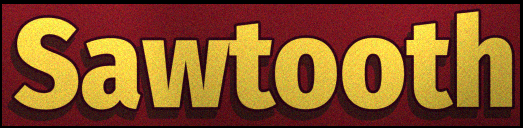
Sawtooth